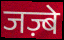
जज़्बे